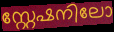
സ്റ്റേഷനിലോ